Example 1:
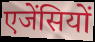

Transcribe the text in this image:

एजेंसियों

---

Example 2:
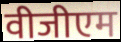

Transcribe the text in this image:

वीजीएम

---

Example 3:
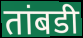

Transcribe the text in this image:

तांबडी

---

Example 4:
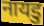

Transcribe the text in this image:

नायडु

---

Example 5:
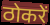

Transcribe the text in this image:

ठोकरें